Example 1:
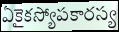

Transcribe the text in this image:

ఏకైకస్యోపకారస్య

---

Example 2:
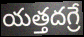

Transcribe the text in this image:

యత్తదగ్రే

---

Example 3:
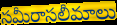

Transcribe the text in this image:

సమీరాసలీమాలు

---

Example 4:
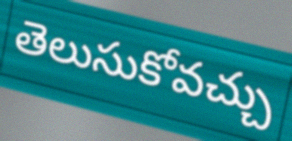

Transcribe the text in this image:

తెలుసుకోవచ్చు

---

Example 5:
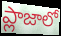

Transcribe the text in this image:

ప్లాజాలో